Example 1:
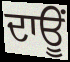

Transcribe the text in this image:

ਦਾਊਂ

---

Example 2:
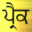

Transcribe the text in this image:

ਪ੍ਰੈਕ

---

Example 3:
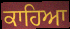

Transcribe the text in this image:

ਕਾਹਿਆ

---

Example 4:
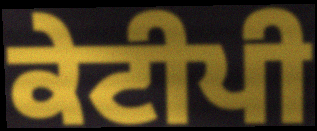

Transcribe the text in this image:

ਕੇਟੀਪੀ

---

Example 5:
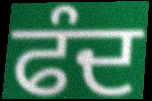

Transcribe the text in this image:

ਫੰਦ